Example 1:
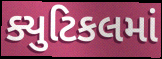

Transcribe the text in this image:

ક્યુટિકલમાં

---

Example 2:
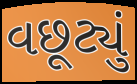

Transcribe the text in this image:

વછૂટ્યું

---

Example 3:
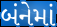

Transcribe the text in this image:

બંનેમાં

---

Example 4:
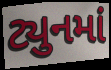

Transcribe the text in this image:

ટ્યુનમાં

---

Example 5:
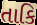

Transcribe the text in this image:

તાકિ